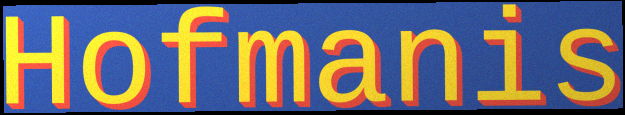
Hofmanis